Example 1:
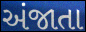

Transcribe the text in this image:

અંજાતા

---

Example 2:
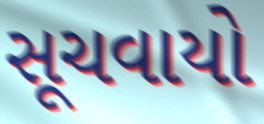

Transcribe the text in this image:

સૂચવાયો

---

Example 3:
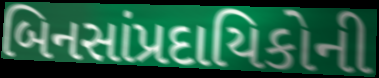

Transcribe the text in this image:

બિનસાંપ્રદાયિકોની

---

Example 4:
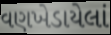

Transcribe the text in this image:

વણખેડાયેલાં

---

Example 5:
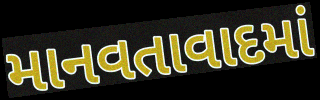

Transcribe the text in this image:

માનવતાવાદમાં